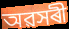
অৱসৰী